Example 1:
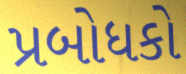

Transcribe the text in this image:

પ્રબોધકો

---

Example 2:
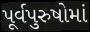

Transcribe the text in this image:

પૂર્વપુરુષોમાં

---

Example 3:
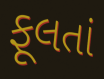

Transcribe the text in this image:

ફૂલતાં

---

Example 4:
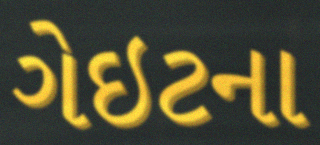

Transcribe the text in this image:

ગેઇટના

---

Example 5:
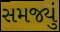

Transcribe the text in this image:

સમજ્યું